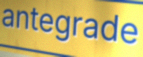
antegrade